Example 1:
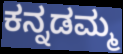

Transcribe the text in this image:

ಕನ್ನಡಮ್ಮ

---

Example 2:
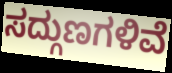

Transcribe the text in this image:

ಸದ್ಗುಣಗಳಿವೆ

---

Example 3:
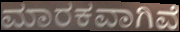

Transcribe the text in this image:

ಮಾರಕವಾಗಿವೆ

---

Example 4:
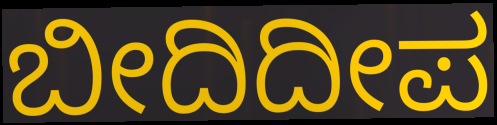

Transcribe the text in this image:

ಬೀದಿದೀಪ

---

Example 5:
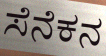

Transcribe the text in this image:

ಸೆನೆಕನ